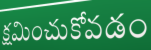
క్షమించుకోవడం